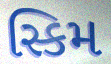
સ્કિમ